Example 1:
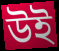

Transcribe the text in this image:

উই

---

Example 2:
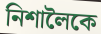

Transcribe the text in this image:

নিশালৈকে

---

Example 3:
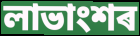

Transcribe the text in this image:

লাভাংশৰ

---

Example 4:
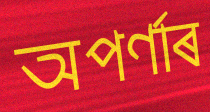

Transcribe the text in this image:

অপৰ্ণাৰ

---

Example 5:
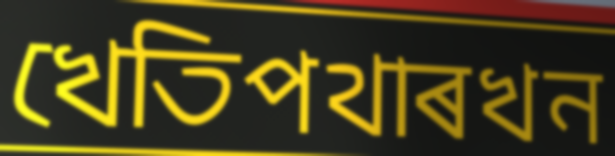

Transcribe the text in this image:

খেতিপথাৰখন